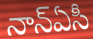
నాన్ఏసీ